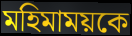
মহিমাময়কে